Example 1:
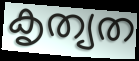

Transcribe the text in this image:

കൃത്യത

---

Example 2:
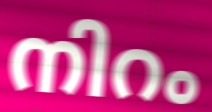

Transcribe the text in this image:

നിറം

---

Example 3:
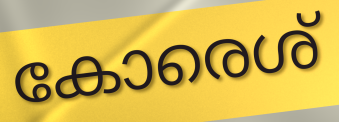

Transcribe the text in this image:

കോരെശ്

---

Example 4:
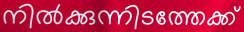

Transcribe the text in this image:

നിൽക്കുന്നിടത്തേക്ക്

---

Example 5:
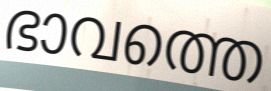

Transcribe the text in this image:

ഭാവത്തെ